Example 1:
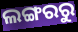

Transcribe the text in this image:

ଲଙ୍ଗରରୁ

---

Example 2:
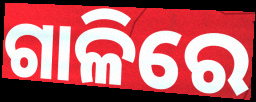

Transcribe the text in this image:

ଗାଳିରେ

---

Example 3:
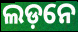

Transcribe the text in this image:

ଲଡ଼ନେ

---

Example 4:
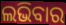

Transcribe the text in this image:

ଲଭିବାର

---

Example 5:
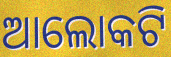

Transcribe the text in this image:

ଆଲୋକଟି